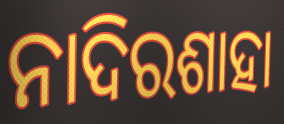
ନାଦିରଶାହା